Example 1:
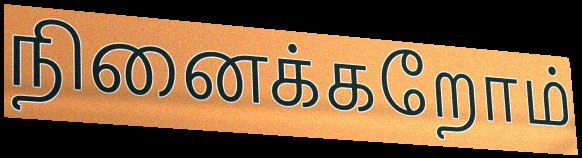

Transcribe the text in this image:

நினைக்கறோம்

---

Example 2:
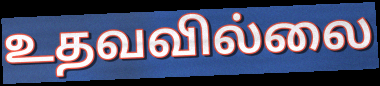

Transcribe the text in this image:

உதவவில்லை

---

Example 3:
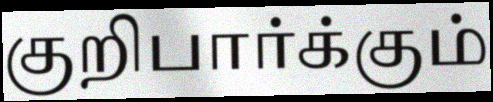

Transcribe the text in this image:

குறிபார்க்கும்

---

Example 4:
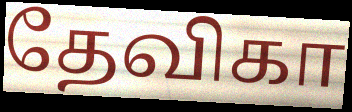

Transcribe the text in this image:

தேவிகா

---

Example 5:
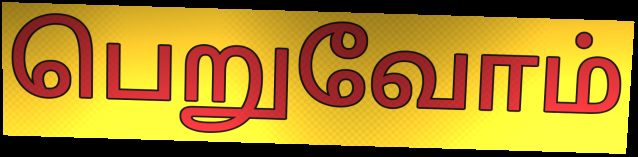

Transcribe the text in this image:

பெறுவோம்